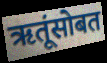
ऋतूंसोबत